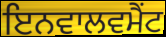
ਇਨਵਾਲਵਮੈਂਟ